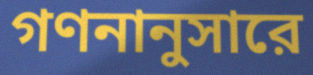
গণনানুসারে